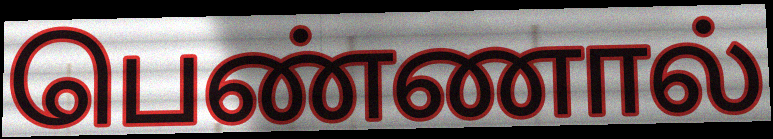
பெண்ணால்